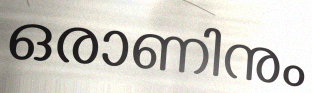
ഒരാണിനും